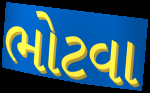
ભોટવા